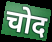
चोद